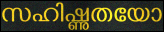
സഹിഷ്ണുതയോ